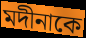
মদীনাকে